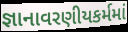
જ્ઞાનાવરણીયકર્મમાં